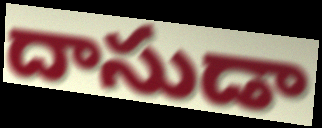
దాసుడా